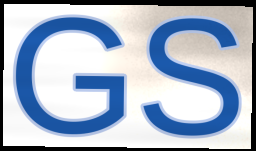
GS